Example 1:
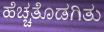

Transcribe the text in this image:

ಹೆಚ್ಚತೊಡಗಿತು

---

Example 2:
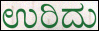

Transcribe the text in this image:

ಉರಿದು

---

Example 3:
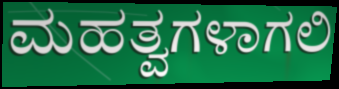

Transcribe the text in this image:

ಮಹತ್ವಗಳಾಗಲಿ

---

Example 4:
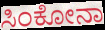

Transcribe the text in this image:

ಸಿಂಕೋನಾ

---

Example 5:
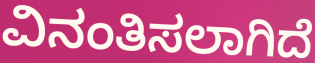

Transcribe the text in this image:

ವಿನಂತಿಸಲಾಗಿದೆ